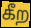
கீற